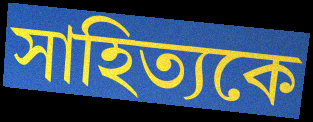
সাহিত্যকে